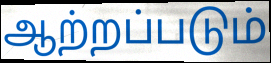
ஆற்றப்படும்